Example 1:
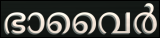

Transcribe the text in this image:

ഭാവൈർ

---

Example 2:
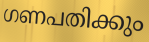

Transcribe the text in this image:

ഗണപതിക്കും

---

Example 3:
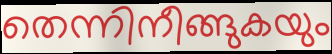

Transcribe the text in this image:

തെന്നിനീങ്ങുകയും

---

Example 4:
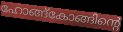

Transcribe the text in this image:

ഹോങ്ങ്കോങ്ങിന്റെ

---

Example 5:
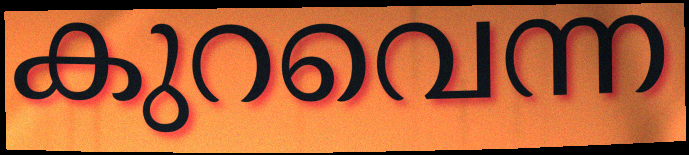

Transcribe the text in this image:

കുറവെന്ന